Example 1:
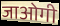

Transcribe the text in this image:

जाओगी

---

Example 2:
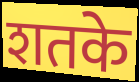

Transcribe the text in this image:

शतके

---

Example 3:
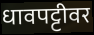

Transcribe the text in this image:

धावपट्टीवर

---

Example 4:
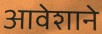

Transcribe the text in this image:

आवेशाने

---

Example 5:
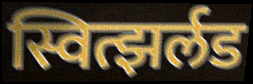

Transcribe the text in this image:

स्वित्झर्लड